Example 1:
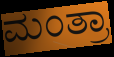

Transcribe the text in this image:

ಮಂತ್ರಾ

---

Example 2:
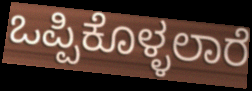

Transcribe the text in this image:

ಒಪ್ಪಿಕೊಳ್ಳಲಾರೆ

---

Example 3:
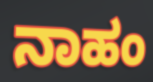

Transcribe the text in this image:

ನಾಹಂ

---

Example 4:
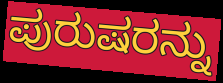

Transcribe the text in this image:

ಪುರುಷರನ್ನು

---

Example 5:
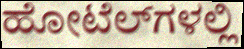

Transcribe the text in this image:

ಹೋಟೆಲ್‌ಗಳಲ್ಲಿ